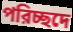
পরিচ্ছদে